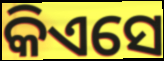
କିଏସେ